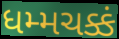
ધમ્મચક્કં